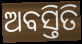
ଅବସ୍ତିତି